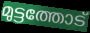
മുട്ടത്തോട്